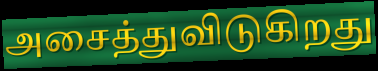
அசைத்துவிடுகிறது